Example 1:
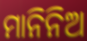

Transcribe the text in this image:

ମାନିନିଅ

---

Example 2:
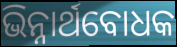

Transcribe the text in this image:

ଭିନ୍ନାର୍ଥବୋଧକ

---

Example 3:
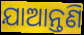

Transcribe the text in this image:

ଯାଆନ୍ତଣି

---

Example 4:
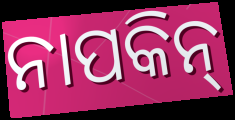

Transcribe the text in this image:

ନାପକିନ୍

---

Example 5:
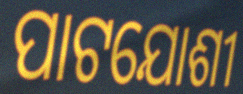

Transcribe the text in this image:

ପାଟଯୋଶୀ